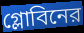
গ্লোবিনের